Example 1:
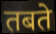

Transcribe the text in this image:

तबते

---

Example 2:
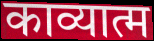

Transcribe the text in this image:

काव्यात्म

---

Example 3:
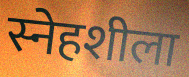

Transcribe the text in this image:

स्नेहशीला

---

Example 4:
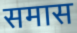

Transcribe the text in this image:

समास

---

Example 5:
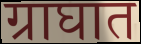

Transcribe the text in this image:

ग्राघात